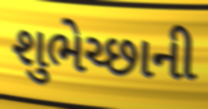
શુભેચ્છાની